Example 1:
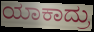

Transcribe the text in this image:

ಯಾಕಾದ್ರು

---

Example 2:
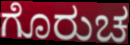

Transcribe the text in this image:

ಗೊರುಚ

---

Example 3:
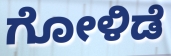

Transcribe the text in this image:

ಗೋಳಿಡೆ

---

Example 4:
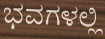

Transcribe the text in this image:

ಭವಗಳಲ್ಲಿ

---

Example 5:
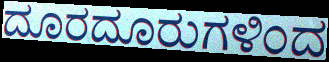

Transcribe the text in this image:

ದೂರದೂರುಗಳಿಂದ